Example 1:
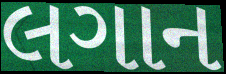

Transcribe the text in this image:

લગાન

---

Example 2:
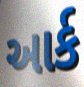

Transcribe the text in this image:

આર્ક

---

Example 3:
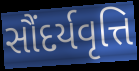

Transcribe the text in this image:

સૌંદર્યવૃત્તિ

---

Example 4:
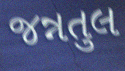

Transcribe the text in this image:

જન્નતુલ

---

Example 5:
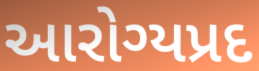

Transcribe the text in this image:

આરોગ્યપ્રદ